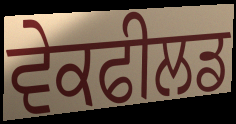
ਵੇਕਫੀਲਡ